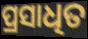
ପ୍ରସାଧିତ